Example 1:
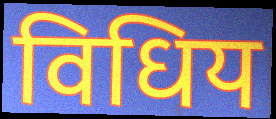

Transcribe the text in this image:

विधिय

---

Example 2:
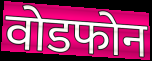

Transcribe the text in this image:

वोडफोन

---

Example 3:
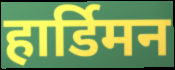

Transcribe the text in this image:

हार्डिमन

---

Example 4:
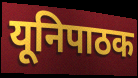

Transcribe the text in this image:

यूनिपाठक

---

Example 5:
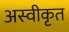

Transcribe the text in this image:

अस्‍वीकृत